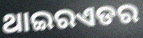
ଥାଇରଏଡର